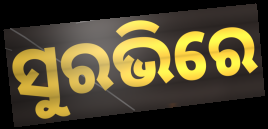
ସୁରଭିରେ